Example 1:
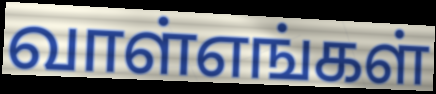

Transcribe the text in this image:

வாள்எங்கள்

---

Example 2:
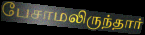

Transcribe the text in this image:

பேசாமலிருந்தார்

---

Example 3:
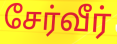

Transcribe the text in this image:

சேர்வீர்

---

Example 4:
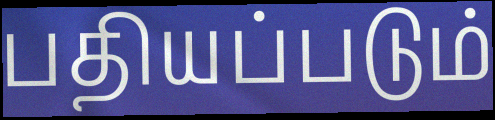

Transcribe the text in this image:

பதியப்படும்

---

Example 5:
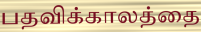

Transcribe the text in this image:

பதவிக்காலத்தை